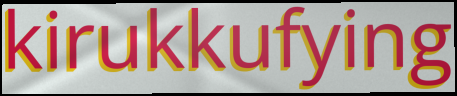
kirukkufying